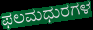
ಫಲಮಧುರಗಳ